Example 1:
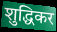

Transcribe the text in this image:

शुद्धिकर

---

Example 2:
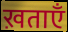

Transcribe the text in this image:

ख़ताएँ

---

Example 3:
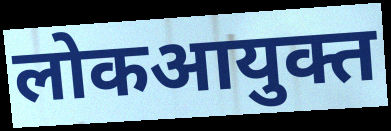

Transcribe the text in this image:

लोकआयुक्त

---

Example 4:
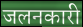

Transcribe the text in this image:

जलनकारी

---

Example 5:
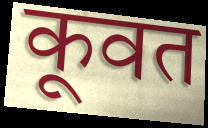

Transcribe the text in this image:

कूवत